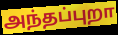
அந்தப்புறா